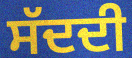
ਸੱਦਦੀ